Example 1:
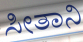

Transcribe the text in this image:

ಸೀತಾನಿ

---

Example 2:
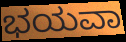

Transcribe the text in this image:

ಭಯವಾ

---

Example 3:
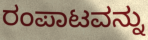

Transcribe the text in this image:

ರಂಪಾಟವನ್ನು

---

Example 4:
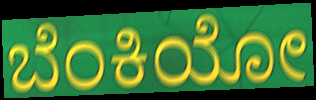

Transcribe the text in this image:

ಬೆಂಕಿಯೋ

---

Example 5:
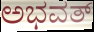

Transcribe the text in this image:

ಅಭವತ್